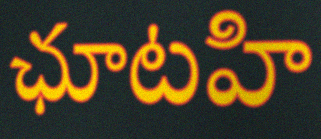
ఛూటహి